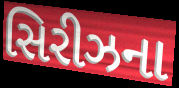
સિરીઝના